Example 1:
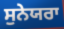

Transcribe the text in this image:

ਸੁਨੇਯਰਾ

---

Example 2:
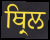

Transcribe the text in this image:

ਥ੍ਰਿਲ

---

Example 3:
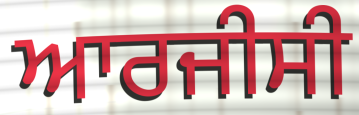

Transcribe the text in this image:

ਆਰਜੀਸੀ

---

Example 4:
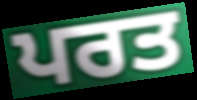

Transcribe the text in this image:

ਪਰਤ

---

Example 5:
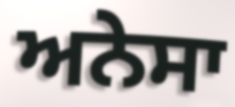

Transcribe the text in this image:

ਅਨੇਸਾ